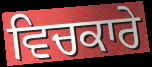
ਵਿਚਕਾਰੇ